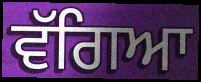
ਵੱਗਿਆ